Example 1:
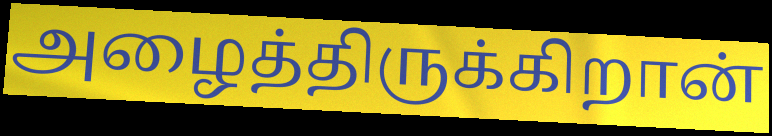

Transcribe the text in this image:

அழைத்திருக்கிறான்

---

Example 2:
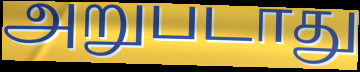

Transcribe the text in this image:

அறுபடாது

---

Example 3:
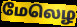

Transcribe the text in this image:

மேலெழ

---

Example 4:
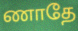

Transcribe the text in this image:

ணாதே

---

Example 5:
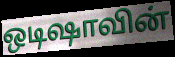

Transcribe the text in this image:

ஒடிஷாவின்